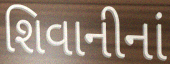
શિવાનીનાં